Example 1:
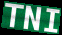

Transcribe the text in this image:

TNI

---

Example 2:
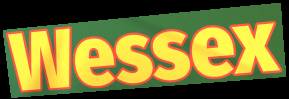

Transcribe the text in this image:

Wessex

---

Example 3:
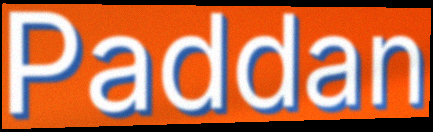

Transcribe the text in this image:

Paddan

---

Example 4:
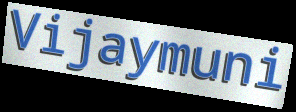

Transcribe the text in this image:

Vijaymuni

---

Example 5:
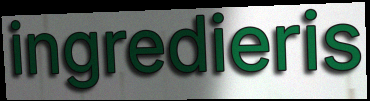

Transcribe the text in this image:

ingredieris